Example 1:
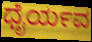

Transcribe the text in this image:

ಧೈರ್ಯವ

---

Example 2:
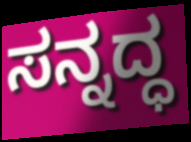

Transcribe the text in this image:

ಸನ್ನದ್ಧ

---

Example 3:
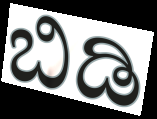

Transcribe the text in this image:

ಬಿಡಿ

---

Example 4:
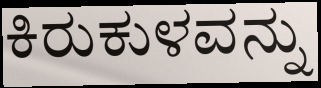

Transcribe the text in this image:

ಕಿರುಕುಳವನ್ನು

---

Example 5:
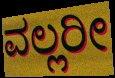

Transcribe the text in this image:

ವಲ್ಲರೀ